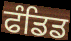
ਫੰਡਿਡ